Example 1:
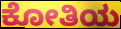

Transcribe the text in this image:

ಕೋತಿಯ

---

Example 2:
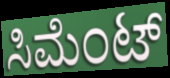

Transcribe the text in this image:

ಸಿಮೆಂಟ್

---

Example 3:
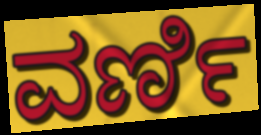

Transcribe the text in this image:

ವರ್ಣಿ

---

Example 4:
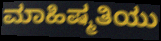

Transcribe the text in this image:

ಮಾಹಿಷ್ಮತಿಯು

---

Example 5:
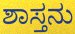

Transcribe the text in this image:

ಶಾಸ್ತನು